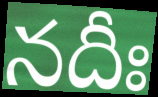
నదీః